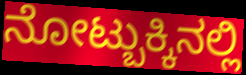
ನೋಟ್ಬುಕ್ಕಿನಲ್ಲಿ